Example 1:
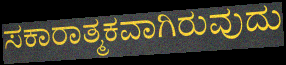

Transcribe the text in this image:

ಸಕಾರಾತ್ಮಕವಾಗಿರುವುದು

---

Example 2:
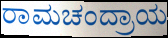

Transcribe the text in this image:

ರಾಮಚಂದ್ರಾಯ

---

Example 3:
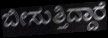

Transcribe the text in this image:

ಬೀಸುತ್ತಿದ್ದಾರೆ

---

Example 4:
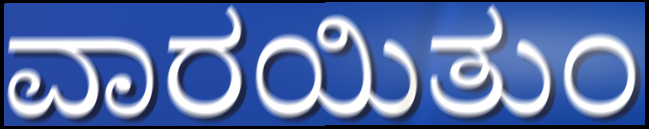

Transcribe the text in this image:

ವಾರಯಿತುಂ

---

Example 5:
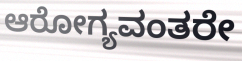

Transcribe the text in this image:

ಆರೋಗ್ಯವಂತರೇ